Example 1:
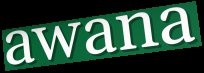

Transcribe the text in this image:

awana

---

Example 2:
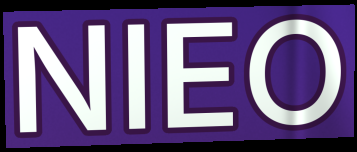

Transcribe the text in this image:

NIEO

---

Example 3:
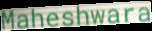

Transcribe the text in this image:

Maheshwara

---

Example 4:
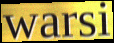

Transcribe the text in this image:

warsi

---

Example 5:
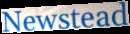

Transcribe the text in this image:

Newstead